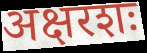
अक्षरशः